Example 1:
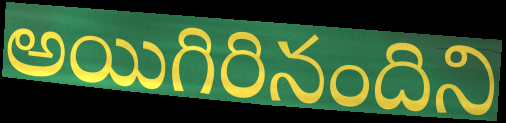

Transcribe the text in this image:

అయిగిరినందిని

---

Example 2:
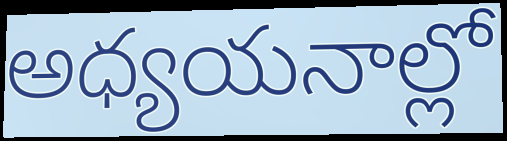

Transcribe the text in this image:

అధ్యయనాల్లో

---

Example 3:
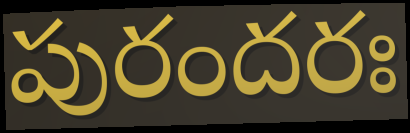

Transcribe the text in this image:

పురందరః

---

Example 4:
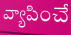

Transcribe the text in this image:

వ్యాపించే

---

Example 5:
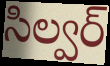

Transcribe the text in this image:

సిల్వర్